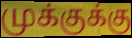
முக்குக்கு